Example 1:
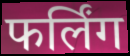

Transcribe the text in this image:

फर्लिंग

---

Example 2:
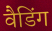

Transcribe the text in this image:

वैडिंग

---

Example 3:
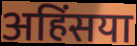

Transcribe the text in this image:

अहिंसया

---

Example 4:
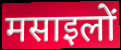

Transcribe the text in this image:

मसाइलों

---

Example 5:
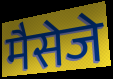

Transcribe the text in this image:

मैसेजे